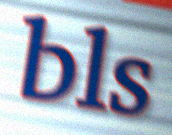
bls